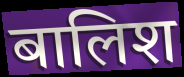
बालिश